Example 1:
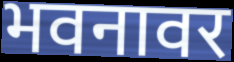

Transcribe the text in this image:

भवनावर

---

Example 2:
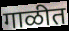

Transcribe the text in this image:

गाळीत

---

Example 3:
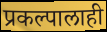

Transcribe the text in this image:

प्रकल्पालाही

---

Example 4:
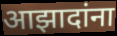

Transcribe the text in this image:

आझादांना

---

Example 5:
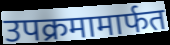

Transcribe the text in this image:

उपक्रमामार्फत